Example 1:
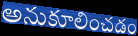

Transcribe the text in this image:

అనుకూలించడం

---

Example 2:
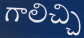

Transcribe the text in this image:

గాలిచ్చి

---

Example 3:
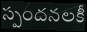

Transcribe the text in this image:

స్పందనలకీ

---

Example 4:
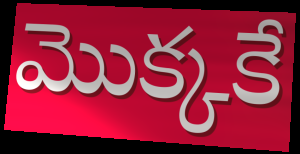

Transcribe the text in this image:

మొక్కకే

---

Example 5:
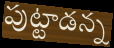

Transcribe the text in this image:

పుట్టాడన్న